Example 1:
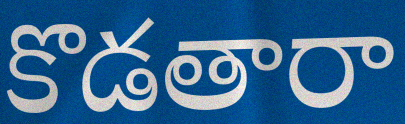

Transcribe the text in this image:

కొడతారా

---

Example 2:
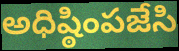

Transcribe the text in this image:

అధిష్ఠింపజేసి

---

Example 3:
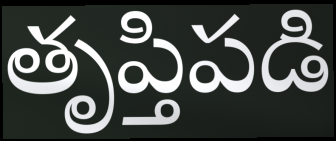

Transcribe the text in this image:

తృప్తిపడి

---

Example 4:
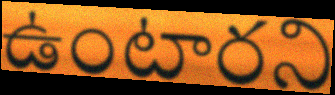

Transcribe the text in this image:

ఉంటారని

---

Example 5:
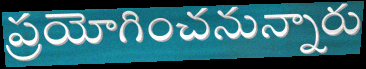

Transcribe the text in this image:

ప్రయోగించనున్నారు